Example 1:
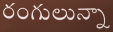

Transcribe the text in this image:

రంగులున్నా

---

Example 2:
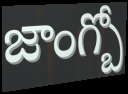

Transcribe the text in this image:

జాంగ్బో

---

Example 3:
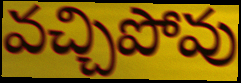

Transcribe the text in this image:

వచ్చిపోవు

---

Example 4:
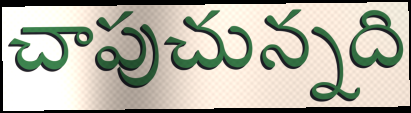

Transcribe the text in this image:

చాపుచున్నది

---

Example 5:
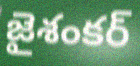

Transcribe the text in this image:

జైశంకర్